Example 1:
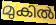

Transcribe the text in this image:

മുകിൽ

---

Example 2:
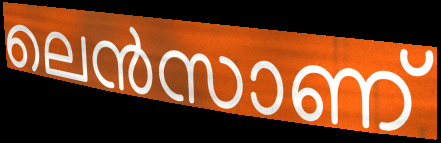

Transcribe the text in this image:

ലെൻസാണ്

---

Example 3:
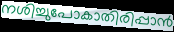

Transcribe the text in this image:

നശിച്ചുപോകാതിരിപ്പാൻ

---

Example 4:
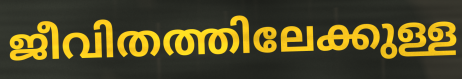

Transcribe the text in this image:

ജീവിതത്തിലേക്കുള്ള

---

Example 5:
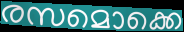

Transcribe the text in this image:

രസമൊക്കെ